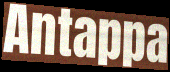
Antappa